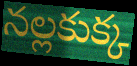
నల్లకుక్క